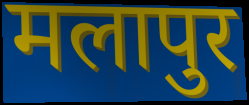
मलापुर